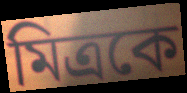
মিত্রকে